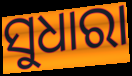
ସୁଧାରା